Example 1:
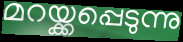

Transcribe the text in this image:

മറയ്ക്കപ്പെടുന്നു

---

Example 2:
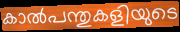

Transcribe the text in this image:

കാൽപന്തുകളിയുടെ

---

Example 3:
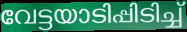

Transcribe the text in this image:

വേട്ടയാടിപ്പിടിച്ച്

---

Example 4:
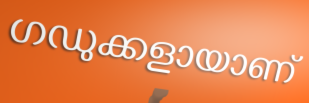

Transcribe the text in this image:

ഗഡുക്കളായാണ്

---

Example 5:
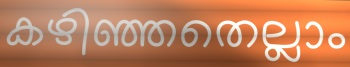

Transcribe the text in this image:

കഴിഞ്ഞതെല്ലാം